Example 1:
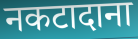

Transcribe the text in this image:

नकटादाना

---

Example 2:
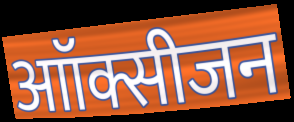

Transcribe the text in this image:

आॉक्सीजन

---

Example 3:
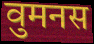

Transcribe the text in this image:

वुमनस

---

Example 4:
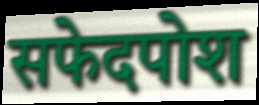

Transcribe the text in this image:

सफेदपोश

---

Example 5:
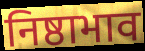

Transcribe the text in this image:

निष्ठाभाव